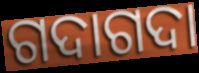
ଗଦାଗଦା